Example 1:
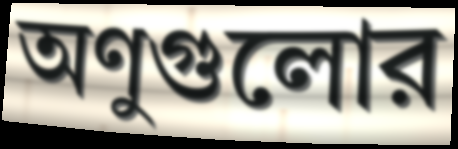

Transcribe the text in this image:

অণুগুলোর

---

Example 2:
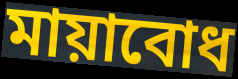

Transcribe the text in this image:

মায়াবোধ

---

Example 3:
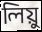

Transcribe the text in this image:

লিয়ু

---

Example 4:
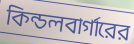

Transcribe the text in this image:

কিন্ডলবার্গারের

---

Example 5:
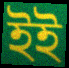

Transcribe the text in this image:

ইই